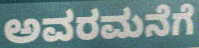
ಅವರಮನೆಗೆ